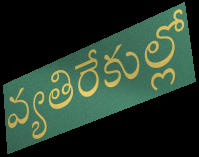
వ్యతిరేకుల్లో